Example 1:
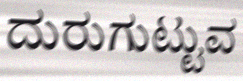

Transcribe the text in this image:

ದುರುಗುಟ್ಟುವ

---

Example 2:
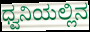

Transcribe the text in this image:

ಧ್ವನಿಯಲ್ಲಿನ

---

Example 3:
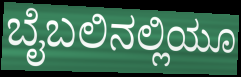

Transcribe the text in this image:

ಬೈಬಲಿನಲ್ಲಿಯೂ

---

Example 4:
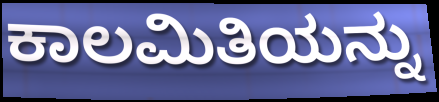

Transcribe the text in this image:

ಕಾಲಮಿತಿಯನ್ನು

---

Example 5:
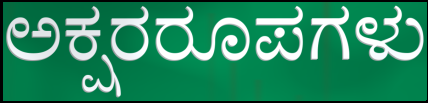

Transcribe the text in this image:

ಅಕ್ಷರರೂಪಗಳು